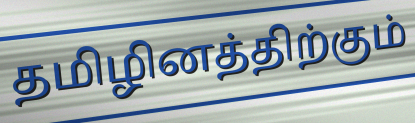
தமிழினத்திற்கும்